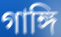
গাঙ্গি